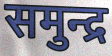
समुन्द्र